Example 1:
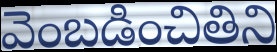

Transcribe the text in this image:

వెంబడించితిని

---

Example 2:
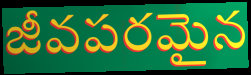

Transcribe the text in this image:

జీవపరమైన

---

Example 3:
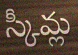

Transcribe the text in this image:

స్కీమ్ల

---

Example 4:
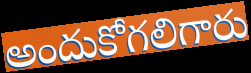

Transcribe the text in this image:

అందుకోగలిగారు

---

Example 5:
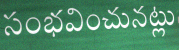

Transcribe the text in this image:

సంభవించునట్లు